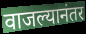
वाजल्यानंतर